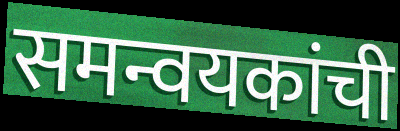
समन्वयकांची